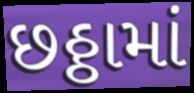
છઠ્ઠામાં